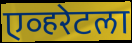
एव्हरेटला